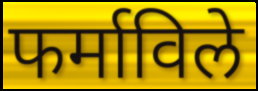
फर्माविले